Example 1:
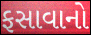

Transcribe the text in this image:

ફસાવાનો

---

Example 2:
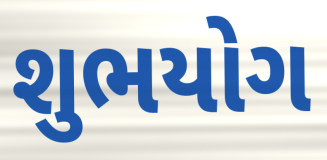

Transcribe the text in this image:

શુભયોગ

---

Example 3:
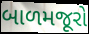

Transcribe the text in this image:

બાળમજૂરો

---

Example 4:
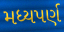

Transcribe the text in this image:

મધ્યપર્ણ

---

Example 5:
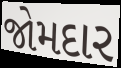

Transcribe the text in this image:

જોમદાર